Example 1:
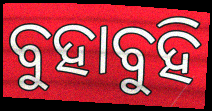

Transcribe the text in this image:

ବୁହାବୁହି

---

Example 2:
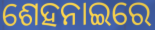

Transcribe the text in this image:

ଶେହନାଇରେ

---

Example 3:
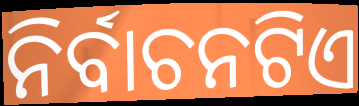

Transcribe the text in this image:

ନିର୍ବାଚନଟିଏ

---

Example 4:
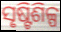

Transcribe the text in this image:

ସୃଷ୍ଟିଶିଳ୍ପ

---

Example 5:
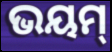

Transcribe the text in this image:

ଭୟମ୍